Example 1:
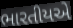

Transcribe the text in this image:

ભારતીયએ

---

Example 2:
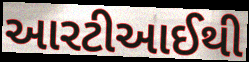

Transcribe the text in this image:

આરટીઆઈથી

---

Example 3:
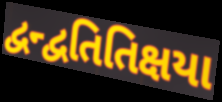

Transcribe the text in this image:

દ્વન્દ્વતિતિક્ષયા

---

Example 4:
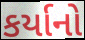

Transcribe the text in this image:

કર્યાનો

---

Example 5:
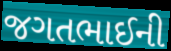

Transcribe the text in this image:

જગતભાઈની